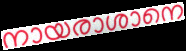
നായരാശാനെ